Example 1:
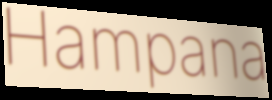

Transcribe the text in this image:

Hampana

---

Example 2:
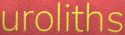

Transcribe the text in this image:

uroliths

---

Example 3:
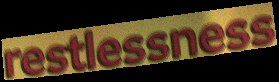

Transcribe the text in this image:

restlessness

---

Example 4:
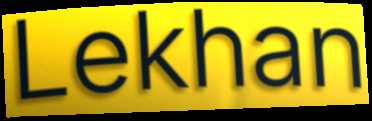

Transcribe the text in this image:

Lekhan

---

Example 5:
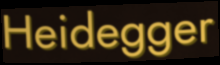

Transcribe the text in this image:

Heidegger